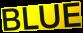
BLUE